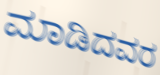
ಮಾಡಿದವರ